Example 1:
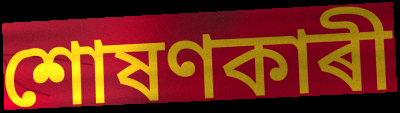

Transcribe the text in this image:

শোষণকাৰী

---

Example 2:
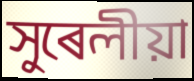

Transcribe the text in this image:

সুৰেলীয়া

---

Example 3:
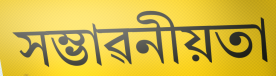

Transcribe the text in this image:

সম্ভাৱনীয়তা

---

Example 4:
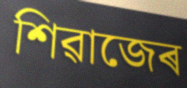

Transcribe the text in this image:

শিৱাজেৰ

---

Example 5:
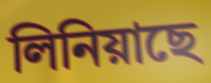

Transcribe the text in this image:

লিনিয়াছে